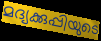
മദ്യക്കുപ്പിയുടെ